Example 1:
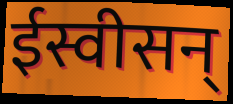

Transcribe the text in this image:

ईस्वीसन्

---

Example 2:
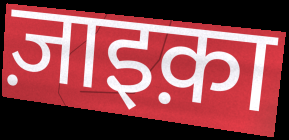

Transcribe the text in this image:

ज़ाइक़ा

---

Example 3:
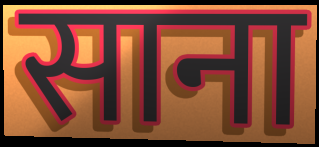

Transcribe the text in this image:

साना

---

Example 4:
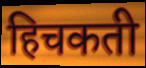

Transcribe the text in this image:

हिचकती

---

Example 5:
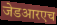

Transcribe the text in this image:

जेडआरएच